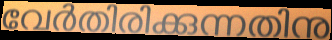
വേർതിരിക്കുന്നതിനു